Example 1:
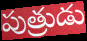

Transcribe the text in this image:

పుత్రుడు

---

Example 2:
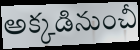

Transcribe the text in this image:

అక్కడినుంచీ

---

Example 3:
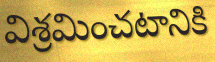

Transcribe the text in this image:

విశ్రమించటానికి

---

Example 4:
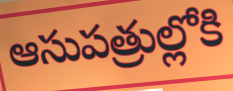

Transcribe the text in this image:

ఆసుపత్రుల్లోకి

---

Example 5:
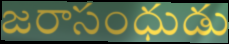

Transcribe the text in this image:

జరాసంధుడు